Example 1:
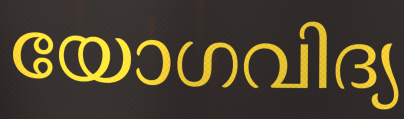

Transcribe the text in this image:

യോഗവിദ്യ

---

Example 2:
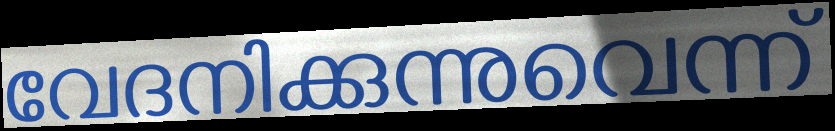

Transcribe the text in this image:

വേദനിക്കുന്നുവെന്ന്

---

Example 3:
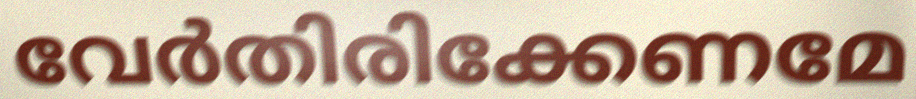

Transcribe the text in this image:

വേർതിരിക്കേണമേ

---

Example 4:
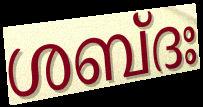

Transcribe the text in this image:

ശബ്ദഃ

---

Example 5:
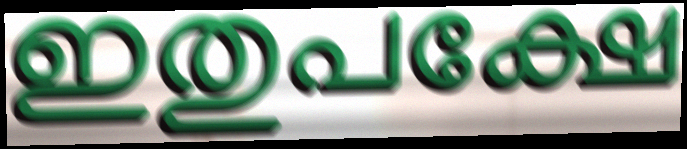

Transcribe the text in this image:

ഇതുപക്ഷേ